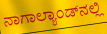
ನಾಗಾಲ್ಯಾಂಡ್‌ನಲ್ಲಿ